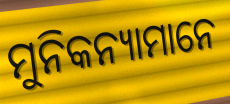
ମୁନିକନ୍ୟାମାନେ